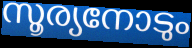
സൂര്യനോടും